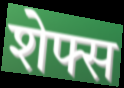
शेफ्स